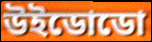
উইডোডো